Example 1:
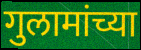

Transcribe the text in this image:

गुलामांच्या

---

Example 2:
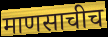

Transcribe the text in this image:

माणसाचीच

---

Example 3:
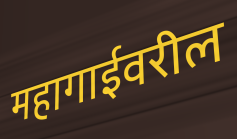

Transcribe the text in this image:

महागाईवरील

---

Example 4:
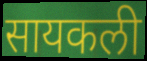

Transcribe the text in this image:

सायकली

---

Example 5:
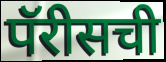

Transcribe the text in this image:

पॅरीसची